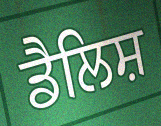
ਡੈਲਿਸ਼